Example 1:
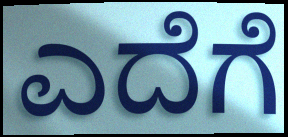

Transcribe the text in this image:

ಎದೆಗೆ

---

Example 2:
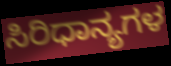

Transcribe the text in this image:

ಸಿರಿಧಾನ್ಯಗಳ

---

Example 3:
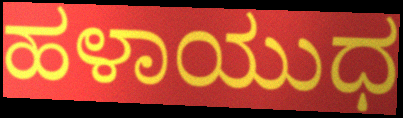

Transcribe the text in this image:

ಹಳಾಯುಧ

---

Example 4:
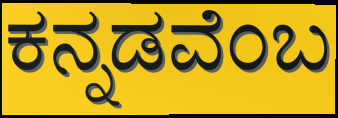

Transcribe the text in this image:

ಕನ್ನಡವೆಂಬ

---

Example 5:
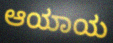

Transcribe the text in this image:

ಆಯಾಯ